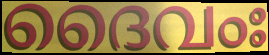
ദൈവംഃ